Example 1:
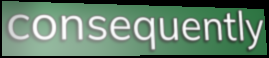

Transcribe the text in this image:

consequently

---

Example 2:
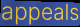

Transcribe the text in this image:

appeals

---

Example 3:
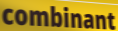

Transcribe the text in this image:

combinant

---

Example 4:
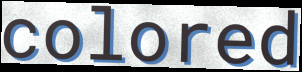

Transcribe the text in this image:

colored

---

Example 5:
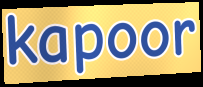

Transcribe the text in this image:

kapoor